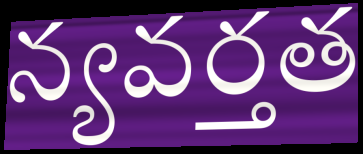
న్యవర్తత